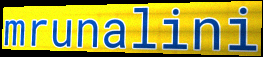
mrunalini